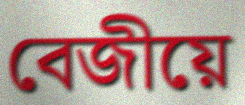
বেজীয়ে